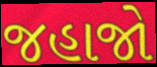
જહાજો